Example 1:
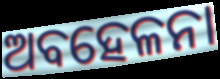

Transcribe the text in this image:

ଅବହେଳନା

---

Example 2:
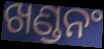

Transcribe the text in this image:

ଖଣ୍ଡନଂ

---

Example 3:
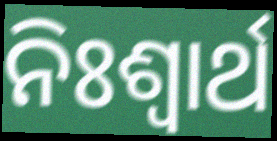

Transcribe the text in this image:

ନିଃଶ୍ୱାର୍ଥ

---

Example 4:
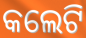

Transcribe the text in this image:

କଲେଟି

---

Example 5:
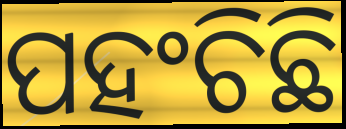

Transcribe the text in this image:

ପହଂଚିଛି